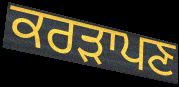
ਕਰੜਾਪਣ